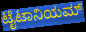
ಟೈಟಾನಿಯಮ್